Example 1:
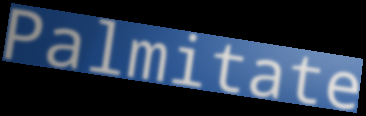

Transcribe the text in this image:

Palmitate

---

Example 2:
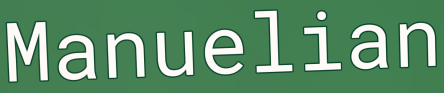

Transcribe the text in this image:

Manuelian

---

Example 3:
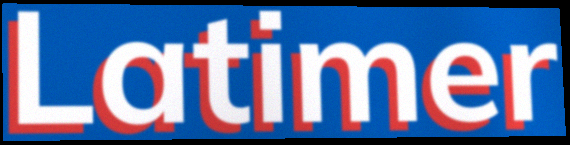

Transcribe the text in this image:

Latimer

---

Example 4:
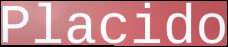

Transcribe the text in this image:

Placido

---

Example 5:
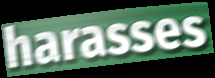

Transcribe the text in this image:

harasses